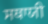
ਸਥਾਯੀ